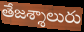
తేజశ్శాలురు